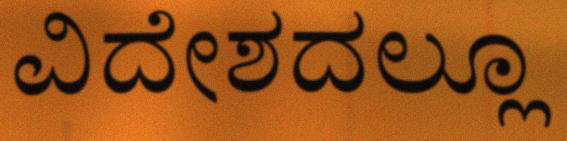
ವಿದೇಶದಲ್ಲೂ